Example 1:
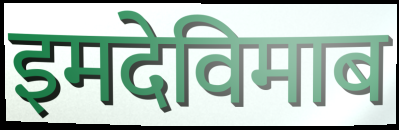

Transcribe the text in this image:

इमदेविमाब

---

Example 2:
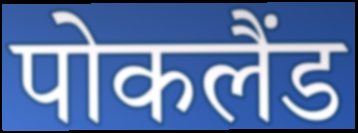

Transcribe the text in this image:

पोकलैंड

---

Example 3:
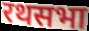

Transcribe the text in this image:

रथसभा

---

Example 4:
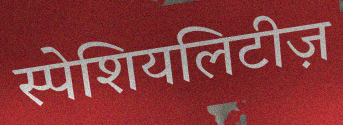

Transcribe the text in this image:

स्पेशियलिटीज़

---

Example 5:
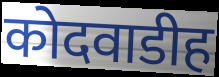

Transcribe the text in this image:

कोदवाडीह